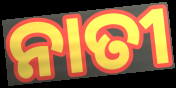
ନାତୀ